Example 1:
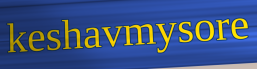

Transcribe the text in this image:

keshavmysore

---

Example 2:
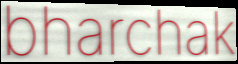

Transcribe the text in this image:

bharchak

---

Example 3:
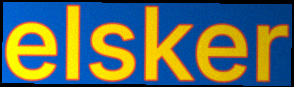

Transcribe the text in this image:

elsker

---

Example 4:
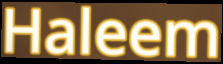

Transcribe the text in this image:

Haleem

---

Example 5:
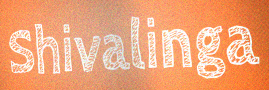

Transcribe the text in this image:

Shivalinga